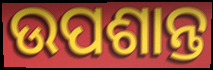
ଉପଶାନ୍ତ